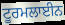
ਟੂਰਮਲਾਈਨ